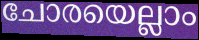
ചോരയെല്ലാം